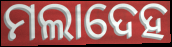
ମଲାଦେହ